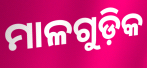
ମାଳଗୁଡ଼ିକ